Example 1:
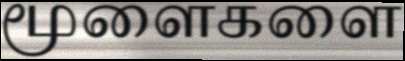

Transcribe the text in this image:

மூளைகளை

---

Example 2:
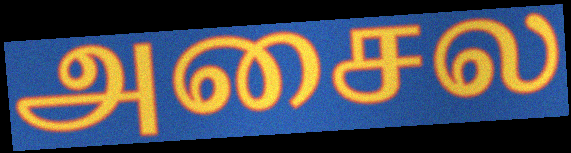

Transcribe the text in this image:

அசைல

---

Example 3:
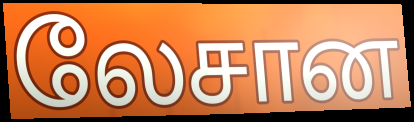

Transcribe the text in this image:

லேசான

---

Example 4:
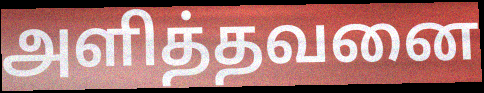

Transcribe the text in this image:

அளித்தவனை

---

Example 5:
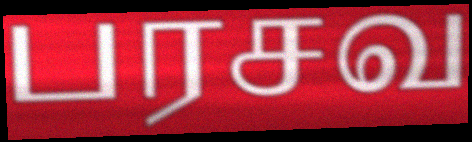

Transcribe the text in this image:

பரசவ